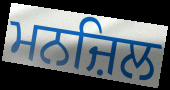
ਮਨਜ਼ਿਲ